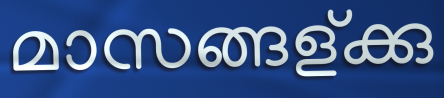
മാസങ്ങള്ക്കു